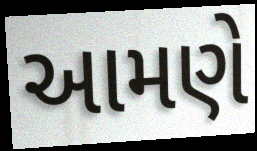
આમણે